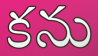
కను